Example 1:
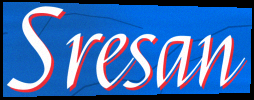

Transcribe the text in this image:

Sresan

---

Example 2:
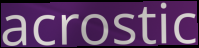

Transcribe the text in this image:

acrostic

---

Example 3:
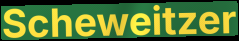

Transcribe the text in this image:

Scheweitzer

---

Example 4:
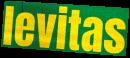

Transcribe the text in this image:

levitas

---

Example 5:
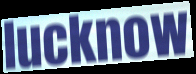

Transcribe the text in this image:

lucknow